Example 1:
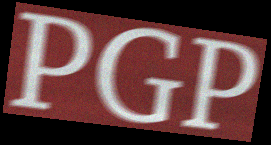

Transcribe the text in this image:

PGP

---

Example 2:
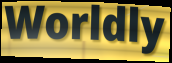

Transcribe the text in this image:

Worldly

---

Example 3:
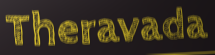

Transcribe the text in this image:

Theravada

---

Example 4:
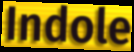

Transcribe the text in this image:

Indole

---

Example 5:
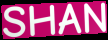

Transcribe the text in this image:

SHAN